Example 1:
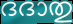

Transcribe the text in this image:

ദദാതു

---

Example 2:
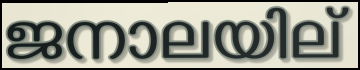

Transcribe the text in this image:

ജനാലയില്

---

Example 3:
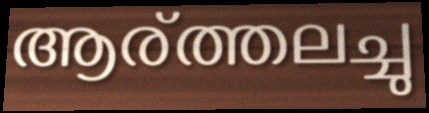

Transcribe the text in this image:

ആര്ത്തലച്ചു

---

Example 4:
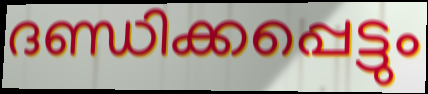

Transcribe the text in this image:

ദണ്ഡിക്കപ്പെട്ടും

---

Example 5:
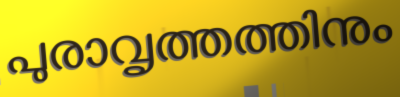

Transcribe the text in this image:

പുരാവൃത്തത്തിനും